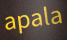
apala